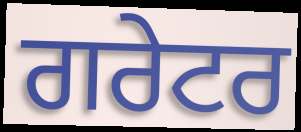
ਗਰੇਟਰ